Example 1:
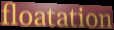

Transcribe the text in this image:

floatation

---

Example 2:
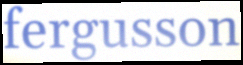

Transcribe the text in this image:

fergusson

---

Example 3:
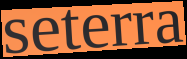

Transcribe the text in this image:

seterra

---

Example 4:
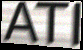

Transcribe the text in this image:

ATI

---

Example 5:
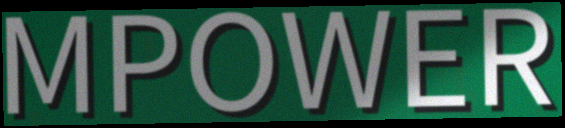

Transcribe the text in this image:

MPOWER